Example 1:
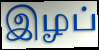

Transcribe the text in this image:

இழப்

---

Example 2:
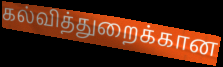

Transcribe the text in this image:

கல்வித்துறைக்கான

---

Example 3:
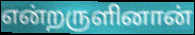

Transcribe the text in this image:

என்றருளினான்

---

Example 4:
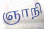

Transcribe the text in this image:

ஞாநி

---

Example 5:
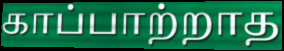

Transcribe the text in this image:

காப்பாற்றாத